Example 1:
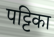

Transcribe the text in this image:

पट्टिका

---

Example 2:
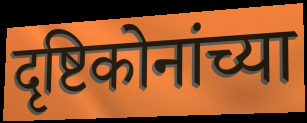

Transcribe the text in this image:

दृष्टिकोनांच्या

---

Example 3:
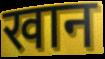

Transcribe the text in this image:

खान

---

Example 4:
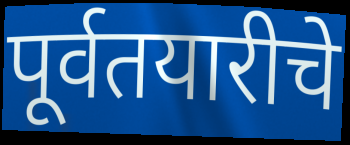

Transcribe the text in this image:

पूर्वतयारीचे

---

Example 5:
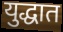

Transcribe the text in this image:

युद्धात